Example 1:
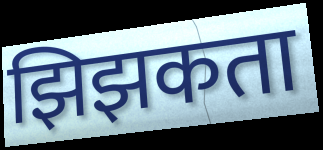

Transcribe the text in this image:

झिझकता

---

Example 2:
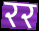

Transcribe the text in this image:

रर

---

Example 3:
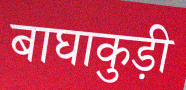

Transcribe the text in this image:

बाघाकुड़ी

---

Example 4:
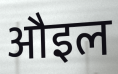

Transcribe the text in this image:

औइल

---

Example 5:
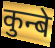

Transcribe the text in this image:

कुन्बे